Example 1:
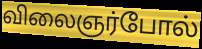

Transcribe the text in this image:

விலைஞர்போல்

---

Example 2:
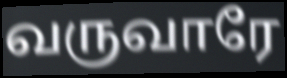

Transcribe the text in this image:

வருவாரே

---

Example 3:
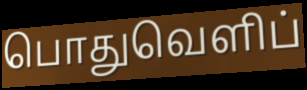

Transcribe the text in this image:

பொதுவெளிப்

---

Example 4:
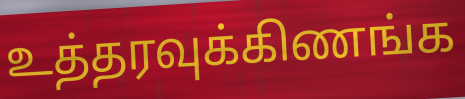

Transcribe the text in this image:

உத்தரவுக்கிணங்க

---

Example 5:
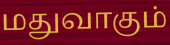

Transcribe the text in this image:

மதுவாகும்